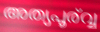
അത്യപൂര്വ്വ